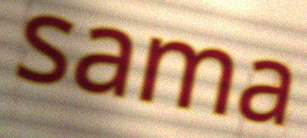
sama